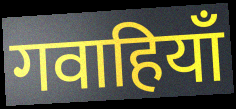
गवाहियाँ